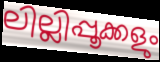
ലില്ലിപ്പൂക്കളും